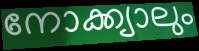
നോക്ക്യാലും